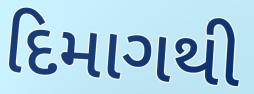
દિમાગથી